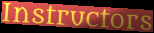
Instructors